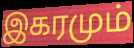
இகரமும்